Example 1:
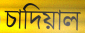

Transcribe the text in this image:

চাদিয়াল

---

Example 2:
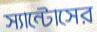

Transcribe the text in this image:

স্যান্টোসের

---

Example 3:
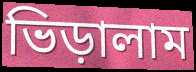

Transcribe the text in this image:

ভিড়ালাম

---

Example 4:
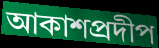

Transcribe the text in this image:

আকাশপ্রদীপ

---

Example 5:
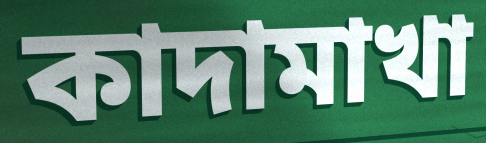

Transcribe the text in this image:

কাদামাখা